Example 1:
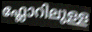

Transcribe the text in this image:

ഫ്ലോറിലുള്ള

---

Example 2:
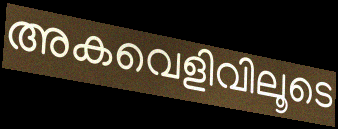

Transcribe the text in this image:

അകവെളിവിലൂടെ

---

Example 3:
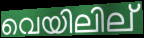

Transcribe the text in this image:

വെയിലില്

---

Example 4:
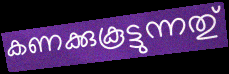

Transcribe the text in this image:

കണക്കുകൂട്ടുന്നതു്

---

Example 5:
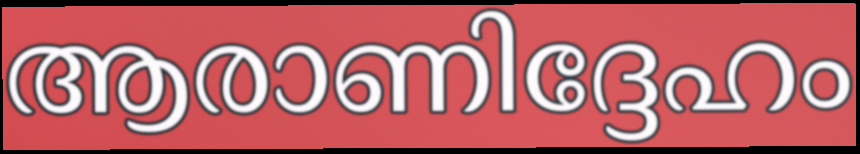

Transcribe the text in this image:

ആരാണിദ്ദേഹം